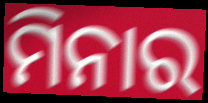
ମିନାର